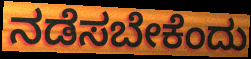
ನಡೆಸಬೇಕೆಂದು